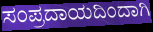
ಸಂಪ್ರದಾಯದಿಂದಾಗಿ